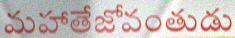
మహాతేజోవంతుడు